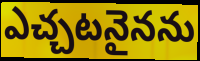
ఎచ్చటనైనను